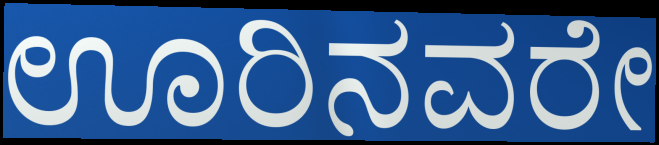
ಊರಿನವರೇ